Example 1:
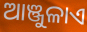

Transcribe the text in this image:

ଆଞ୍ଜୁଳାଏ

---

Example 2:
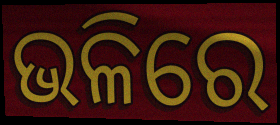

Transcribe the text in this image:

ଭଳିରେ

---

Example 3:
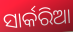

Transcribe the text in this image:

ସାର୍କରିଆ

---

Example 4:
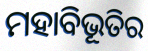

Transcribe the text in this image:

ମହାବିଭୂତିର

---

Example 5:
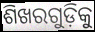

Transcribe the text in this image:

ଶିଖରଗୁଡ଼ିକୁ